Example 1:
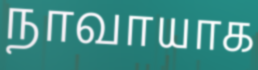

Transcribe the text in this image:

நாவாயாக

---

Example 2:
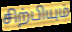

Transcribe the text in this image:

சிற்பியும்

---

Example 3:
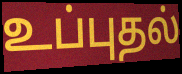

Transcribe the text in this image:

உப்புதல்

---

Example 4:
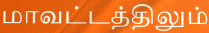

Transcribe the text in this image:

மாவட்டத்திலும்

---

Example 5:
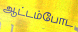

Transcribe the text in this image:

ஆட்டம்போட